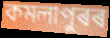
কমলাপুৰৰ